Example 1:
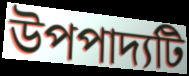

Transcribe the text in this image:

উপপাদ্যটি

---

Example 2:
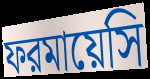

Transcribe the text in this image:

ফরমায়েসি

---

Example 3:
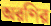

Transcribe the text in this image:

অরণির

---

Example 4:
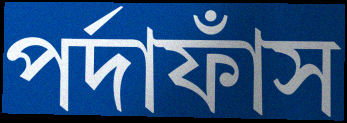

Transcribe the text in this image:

পর্দাফাঁস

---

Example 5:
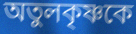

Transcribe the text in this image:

অতুলকৃষ্ণকে